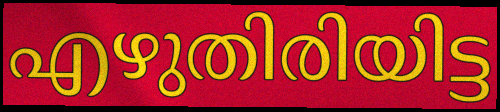
എഴുതിരിയിട്ട